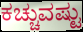
ಕಚ್ಚುವಷ್ಟು